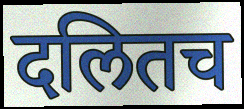
दलितच